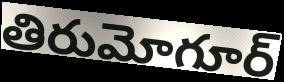
తిరుమోగూర్